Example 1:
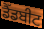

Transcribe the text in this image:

ਡੈੱਡਬੀਟ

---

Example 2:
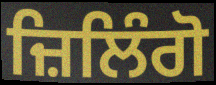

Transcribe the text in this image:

ਜ਼ਿਲਿੰਗੋ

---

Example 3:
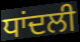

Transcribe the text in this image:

ਧਾਂਦਲੀ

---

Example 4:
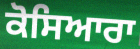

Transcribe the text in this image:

ਕੋਸਿਆਰਾ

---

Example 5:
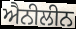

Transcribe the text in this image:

ਐਨੀਲੀਨ